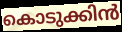
കൊടുക്കിൻ